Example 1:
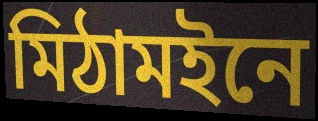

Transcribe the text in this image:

মিঠামইনে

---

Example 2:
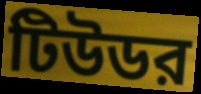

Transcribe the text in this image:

টিউডর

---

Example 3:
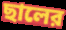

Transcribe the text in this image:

ছালের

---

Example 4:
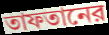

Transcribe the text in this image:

তাফতানের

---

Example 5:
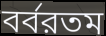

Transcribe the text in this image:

বর্বরতম